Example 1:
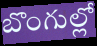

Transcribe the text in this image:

బొంగుల్లో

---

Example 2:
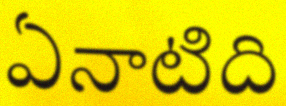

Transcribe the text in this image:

ఏనాటిది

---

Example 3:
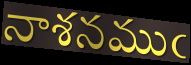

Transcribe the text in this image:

నాశనముఁ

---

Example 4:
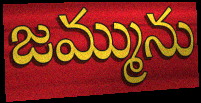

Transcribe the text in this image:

జమ్మును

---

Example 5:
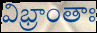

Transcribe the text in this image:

విభ్రాంతాః